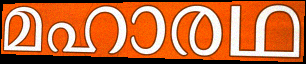
മഹാരഥ